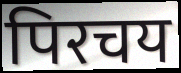
पिरचय